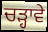
ਚੜ੍ਹਾਵੇ